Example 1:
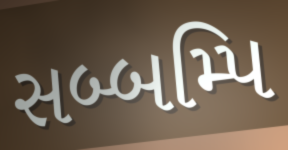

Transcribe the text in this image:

સબ્બમ્પિ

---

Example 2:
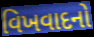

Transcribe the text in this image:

વિખવાદનો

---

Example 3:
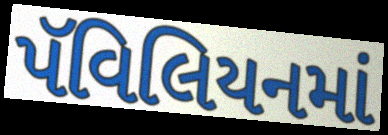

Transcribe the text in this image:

પૅવિલિયનમાં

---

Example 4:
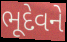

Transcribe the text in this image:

ભૂદેવને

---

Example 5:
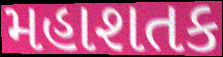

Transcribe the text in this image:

મહાશતક